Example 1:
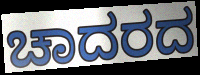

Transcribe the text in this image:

ಚಾದರದ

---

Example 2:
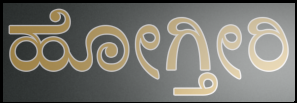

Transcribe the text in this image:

ಹೋಗ್ತೀರಿ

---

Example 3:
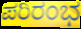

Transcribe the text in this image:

ಪರಿರಂಭ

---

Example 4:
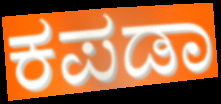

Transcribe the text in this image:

ಕಪಡಾ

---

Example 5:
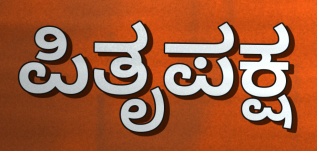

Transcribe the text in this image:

ಪಿತೃಪಕ್ಷ